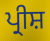
ਪ੍ਰੀਸ਼